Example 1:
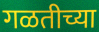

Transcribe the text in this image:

गळतीच्या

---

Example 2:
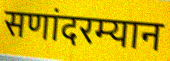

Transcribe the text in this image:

सणांदरम्यान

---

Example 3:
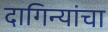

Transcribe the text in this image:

दागिन्यांचा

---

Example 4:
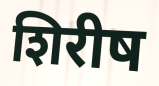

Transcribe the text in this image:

शिरीष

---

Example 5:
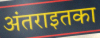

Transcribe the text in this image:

अंतराइतका